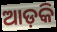
ଆଡ଼କି